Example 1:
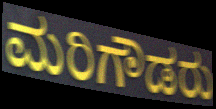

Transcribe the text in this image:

ಮರಿಗೌಡರು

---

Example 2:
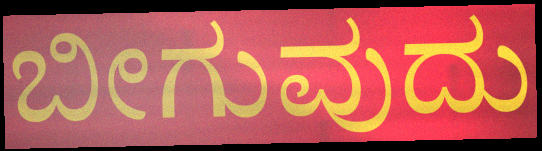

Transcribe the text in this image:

ಬೀಗುವುದು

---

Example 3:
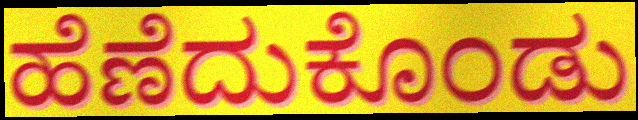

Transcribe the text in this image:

ಹೆಣೆದುಕೊಂಡು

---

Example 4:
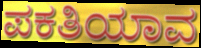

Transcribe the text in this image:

ಪಕತಿಯಾವ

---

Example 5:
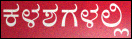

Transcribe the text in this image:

ಕಳಶಗಳಲ್ಲಿ